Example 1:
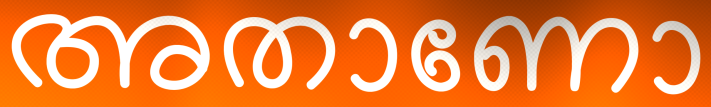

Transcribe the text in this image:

അതാണോ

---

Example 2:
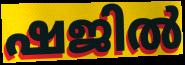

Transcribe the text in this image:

ഷജിൽ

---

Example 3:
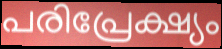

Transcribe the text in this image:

പരിപ്രേക്ഷ്യം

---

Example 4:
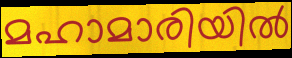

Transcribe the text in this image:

മഹാമാരിയിൽ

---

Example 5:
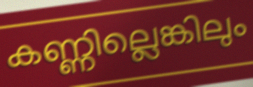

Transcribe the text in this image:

കണ്ണില്ലെങ്കിലും